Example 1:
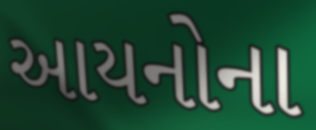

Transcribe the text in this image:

આયનોના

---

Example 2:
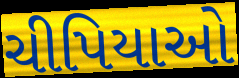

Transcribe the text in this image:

ચીપિયાઓ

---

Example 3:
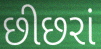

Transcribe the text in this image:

છીછરાં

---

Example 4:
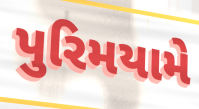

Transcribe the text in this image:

પુરિમયામે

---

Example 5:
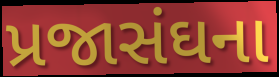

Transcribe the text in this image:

પ્રજાસંઘના